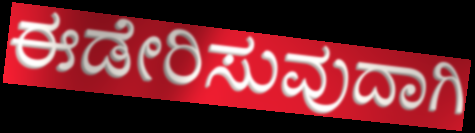
ಈಡೇರಿಸುವುದಾಗಿ